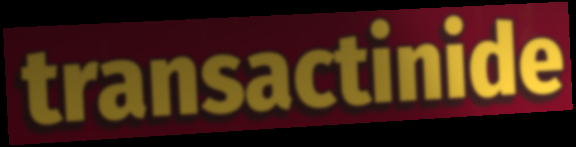
transactinide